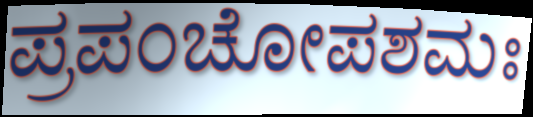
ಪ್ರಪಂಚೋಪಶಮಃ